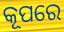
କୂପରେ